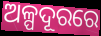
ଅଳ୍ପଦୂରରେ